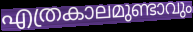
എത്രകാലമുണ്ടാവും